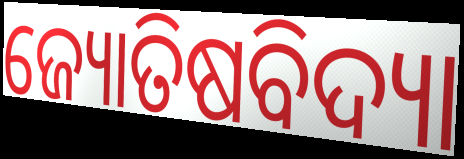
ଜ୍ୟୋତିଷବିଦ୍ୟା